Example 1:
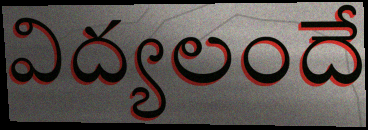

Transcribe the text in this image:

విద్యలందే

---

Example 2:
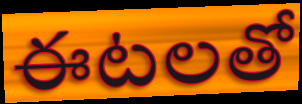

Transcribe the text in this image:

ఈటలతో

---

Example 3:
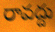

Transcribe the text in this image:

రావద్దు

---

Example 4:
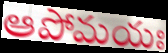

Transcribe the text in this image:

ఆపోమయః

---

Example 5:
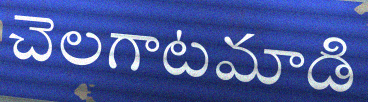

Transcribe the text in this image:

చెలగాటమాడి